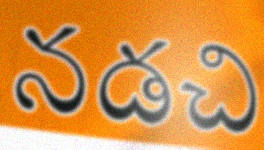
నడచి